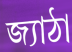
জ্যাঠা